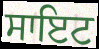
ਸਾਇਟ